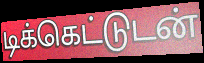
டிக்கெட்டுடன்